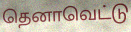
தெனாவெட்டு